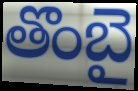
తొంబై